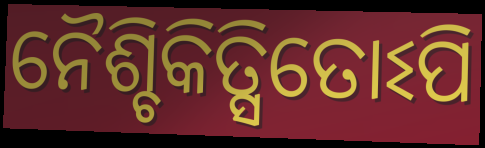
ନୈଶ୍ଚିକିତ୍ସିତୋଽପି